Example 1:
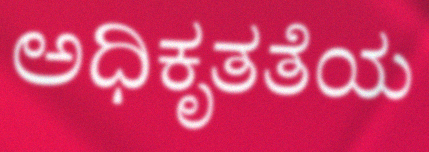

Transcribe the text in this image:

ಅಧಿಕೃತತೆಯ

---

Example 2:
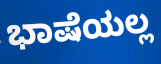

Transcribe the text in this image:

ಭಾಷೆಯಲ್ಲ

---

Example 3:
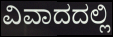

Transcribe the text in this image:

ವಿವಾದದಲ್ಲಿ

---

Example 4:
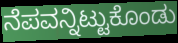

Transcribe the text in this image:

ನೆಪವನ್ನಿಟ್ಟುಕೊಂಡು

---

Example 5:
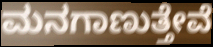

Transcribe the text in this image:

ಮನಗಾಣುತ್ತೇವೆ